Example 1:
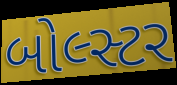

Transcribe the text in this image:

બોલ્સ્ટર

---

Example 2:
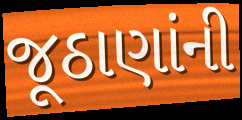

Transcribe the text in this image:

જૂઠાણાંની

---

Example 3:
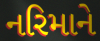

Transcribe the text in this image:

નરિમાને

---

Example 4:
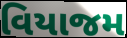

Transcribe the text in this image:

વિયાજમ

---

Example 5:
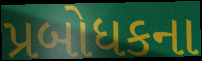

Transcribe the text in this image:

પ્રબોધકના